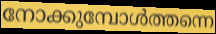
നോക്കുമ്പോൾത്തന്നെ